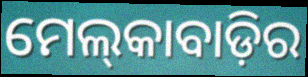
ମେଲ୍‍କାବାଡ଼ିର